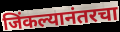
जिंकल्यानंतरचा